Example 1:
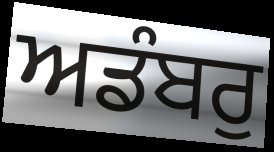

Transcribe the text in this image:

ਅਡੰਬਰੁ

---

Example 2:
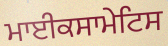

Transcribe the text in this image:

ਮਾਈਕਸਾਮੇਟਿਸ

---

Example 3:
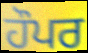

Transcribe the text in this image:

ਹੌਪਰ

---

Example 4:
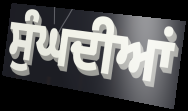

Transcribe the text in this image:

ਸੁੰਘਦੀਆਂ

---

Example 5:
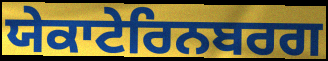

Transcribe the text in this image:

ਯੇਕਾਟੇਰਿਨਬਰਗ